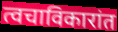
त्वचाविकारांत